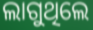
ଲାଗୁଥିଲେ